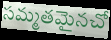
సమ్మతమైనచో